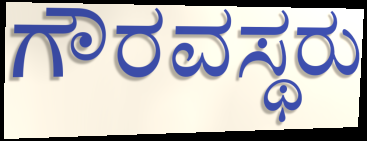
ಗೌರವಸ್ಥರು